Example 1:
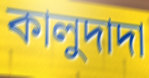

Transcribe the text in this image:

কালুদাদা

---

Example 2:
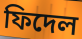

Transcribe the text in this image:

ফিদেল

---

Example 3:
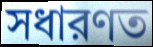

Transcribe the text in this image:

সধারণত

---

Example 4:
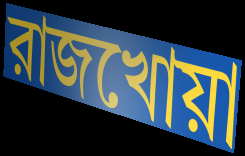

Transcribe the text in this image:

রাজখোয়া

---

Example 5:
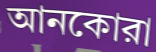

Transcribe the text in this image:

আনকোরা